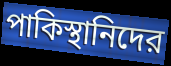
পাকিস্থানিদের